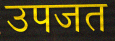
उपजत